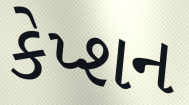
કેપ્શન